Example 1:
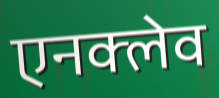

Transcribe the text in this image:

एनक्‍लेव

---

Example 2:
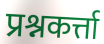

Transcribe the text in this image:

प्रश्नकर्त्ता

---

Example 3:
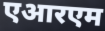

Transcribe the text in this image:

एआरएम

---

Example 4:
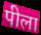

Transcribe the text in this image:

पीला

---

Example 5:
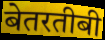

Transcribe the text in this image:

बेतरतीबी